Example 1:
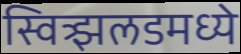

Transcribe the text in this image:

स्वित्र्झलडमध्ये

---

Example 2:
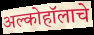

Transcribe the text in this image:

अल्कोहॉलाचे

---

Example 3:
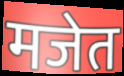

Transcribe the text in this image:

मजेत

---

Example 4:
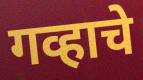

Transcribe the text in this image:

गव्हाचे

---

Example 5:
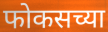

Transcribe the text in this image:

फोकसच्या